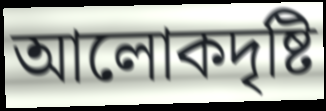
আলোকদৃষ্টি